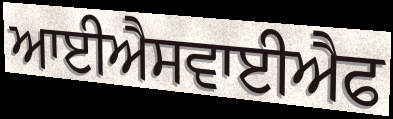
ਆਈਐਸਵਾਈਐਫ